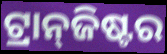
ଟ୍ରାନ୍‍ଜିଷ୍ଟର